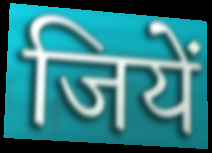
जियें